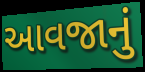
આવજાનું